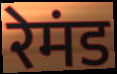
रेमंड